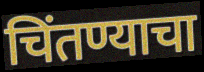
चिंतण्याचा